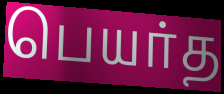
பெயர்த